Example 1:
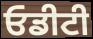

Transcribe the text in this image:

ਓਡੀਟੀ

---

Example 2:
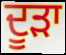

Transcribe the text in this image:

ਦੂੜਾ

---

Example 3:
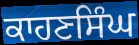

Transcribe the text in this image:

ਕਾਹਣਸਿੰਘ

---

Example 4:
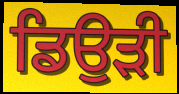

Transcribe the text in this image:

ਡਿਉੜੀ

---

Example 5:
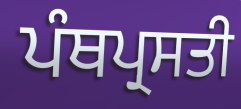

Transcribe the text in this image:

ਪੰਥਪ੍ਰਸਤੀ